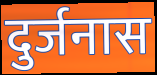
दुर्जनास